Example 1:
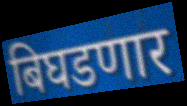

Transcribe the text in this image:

बिघडणार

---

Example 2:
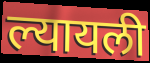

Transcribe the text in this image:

ल्यायली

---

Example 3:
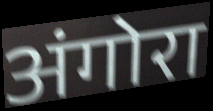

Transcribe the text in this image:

अंगोरा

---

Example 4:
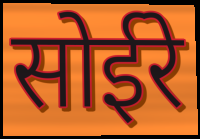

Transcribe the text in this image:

सोईरे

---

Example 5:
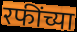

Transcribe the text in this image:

रफींच्या